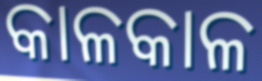
କାଳକାଳ